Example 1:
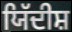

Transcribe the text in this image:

ਯਿੱਦੀਸ਼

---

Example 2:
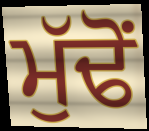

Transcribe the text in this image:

ਮੁੱਢੋਂ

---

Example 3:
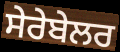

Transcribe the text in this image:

ਸੇਰੇਬੇਲਰ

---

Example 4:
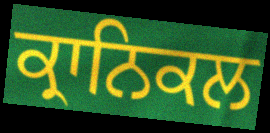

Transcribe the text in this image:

ਕ੍ਰਾਨਿਕਲ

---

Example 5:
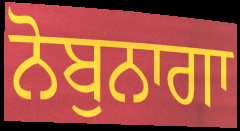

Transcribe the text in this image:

ਨੋਬੁਨਾਗਾ